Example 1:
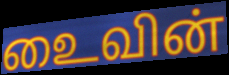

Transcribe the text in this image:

உைவின்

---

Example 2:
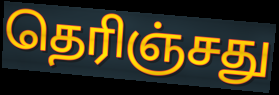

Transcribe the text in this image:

தெரிஞ்சது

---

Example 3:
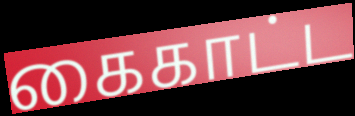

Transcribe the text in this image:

கைகாட்ட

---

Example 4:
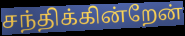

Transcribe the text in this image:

சந்திக்கின்றேன்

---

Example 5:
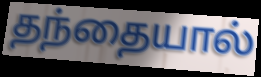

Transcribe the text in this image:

தந்தையால்